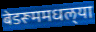
बेडरूममधल्या